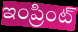
ఇంప్రింట్